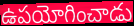
ఉపయోగించాడు